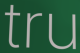
tru